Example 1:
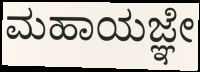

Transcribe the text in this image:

ಮಹಾಯಜ್ಞೇ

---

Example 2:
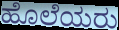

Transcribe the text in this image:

ಹೊಲೆಯರು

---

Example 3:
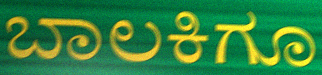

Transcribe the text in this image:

ಬಾಲಕಿಗೂ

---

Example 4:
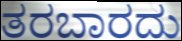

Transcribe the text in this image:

ತರಬಾರದು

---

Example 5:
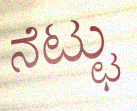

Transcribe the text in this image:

ನೆಟ್ಟು